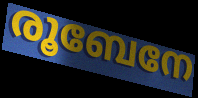
രൂബേനേ